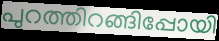
പുറത്തിറങ്ങിപ്പോയി